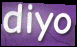
diyo